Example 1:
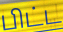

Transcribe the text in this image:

பிட்ட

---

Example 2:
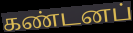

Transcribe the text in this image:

கண்டனப்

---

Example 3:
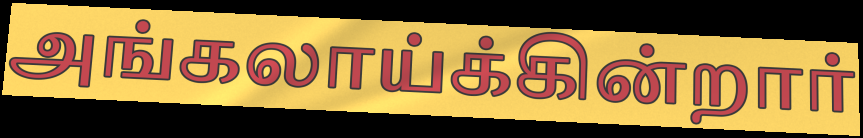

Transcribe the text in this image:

அங்கலாய்க்கின்றார்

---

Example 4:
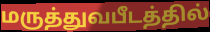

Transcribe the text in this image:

மருத்துவபீடத்தில்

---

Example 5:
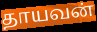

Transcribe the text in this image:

தாயவன்